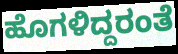
ಹೊಗಳಿದ್ದರಂತೆ